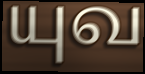
யுவ